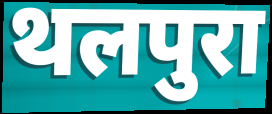
थलपुरा